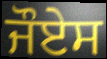
ਜੌਏਸ